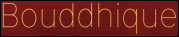
Bouddhique